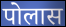
पोलास